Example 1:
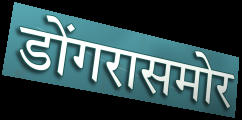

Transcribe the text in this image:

डोंगरासमोर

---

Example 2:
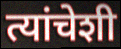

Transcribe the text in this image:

त्यांचेशी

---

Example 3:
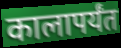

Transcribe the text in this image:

कालापर्यंत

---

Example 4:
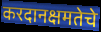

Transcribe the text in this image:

करदानक्षमतेचे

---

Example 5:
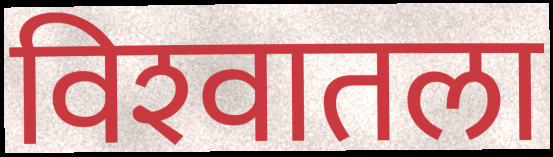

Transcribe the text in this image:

विश्‍वातला